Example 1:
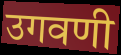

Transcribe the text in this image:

उगवणी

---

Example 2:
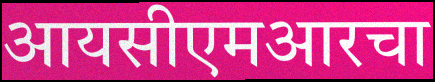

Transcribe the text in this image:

आयसीएमआरचा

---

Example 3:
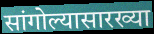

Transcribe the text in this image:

सांगोल्यासारख्या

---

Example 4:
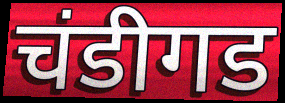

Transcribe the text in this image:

चंडीगड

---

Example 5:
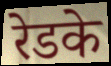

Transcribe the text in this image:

रेडके